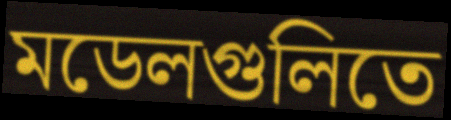
মডেলগুলিতে